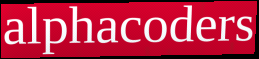
alphacoders